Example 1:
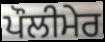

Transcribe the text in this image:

ਪੌਲੀਮੇਰ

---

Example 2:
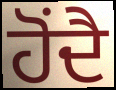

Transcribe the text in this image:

ਹੋਂਦੈ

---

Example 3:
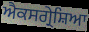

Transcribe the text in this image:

ਐਕਸਗ੍ਰੇਸ਼ਿਆ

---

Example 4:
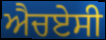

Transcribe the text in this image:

ਐਚਏਸੀ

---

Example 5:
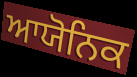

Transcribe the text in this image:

ਆਯੋਨਿਕ